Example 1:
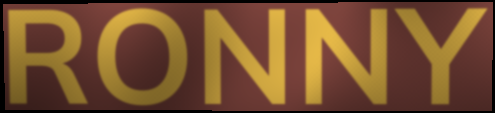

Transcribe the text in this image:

RONNY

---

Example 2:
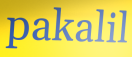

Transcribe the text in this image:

pakalil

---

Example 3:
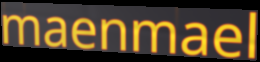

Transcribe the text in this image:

maenmael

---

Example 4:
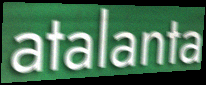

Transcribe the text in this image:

atalanta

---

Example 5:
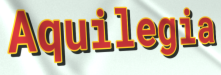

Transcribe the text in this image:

Aquilegia